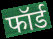
फॉर्ड